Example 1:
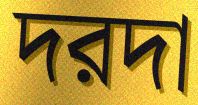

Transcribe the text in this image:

দরদা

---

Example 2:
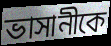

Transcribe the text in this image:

ভাসানীকে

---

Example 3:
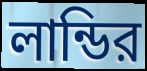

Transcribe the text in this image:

লান্ডির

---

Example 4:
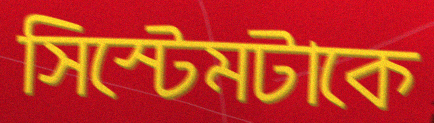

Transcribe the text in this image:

সিস্টেমটাকে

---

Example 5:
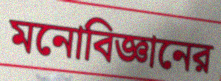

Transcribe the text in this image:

মনোবিজ্ঞানের